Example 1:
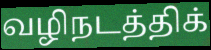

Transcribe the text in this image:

வழிநடத்திக்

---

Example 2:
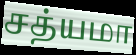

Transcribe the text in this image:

சத்யமா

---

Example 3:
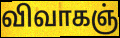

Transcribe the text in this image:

விவாகஞ்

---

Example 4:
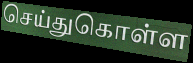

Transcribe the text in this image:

செய்துகொள்ள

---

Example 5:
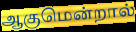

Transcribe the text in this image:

ஆகுமென்றால்